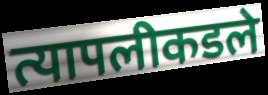
त्यापलीकडले